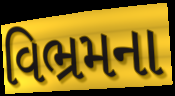
વિભ્રમના